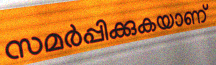
സമർപ്പിക്കുകയാണ്